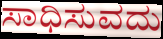
ಸಾಧಿಸುವದು